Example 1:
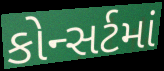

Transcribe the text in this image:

કોન્સર્ટમાં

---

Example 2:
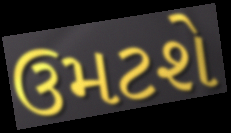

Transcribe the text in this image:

ઉમટશે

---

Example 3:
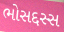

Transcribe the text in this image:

ભોસદ્દસ્સ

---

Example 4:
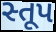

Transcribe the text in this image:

સ્તૂપ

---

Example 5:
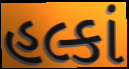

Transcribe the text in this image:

હલ્કાં